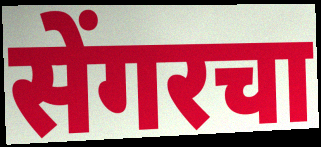
सेंगरचा